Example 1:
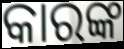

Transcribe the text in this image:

କାରଙ୍କ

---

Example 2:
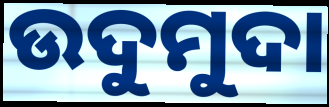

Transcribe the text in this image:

ଉଦୁମୁଦା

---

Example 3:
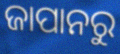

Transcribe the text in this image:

ଜାପାନରୁ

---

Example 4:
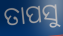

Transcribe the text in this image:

ତାପସୁ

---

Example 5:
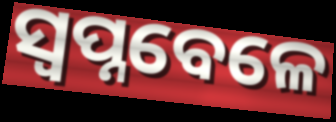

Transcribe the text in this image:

ସ୍ଵପ୍ନବେଳେ